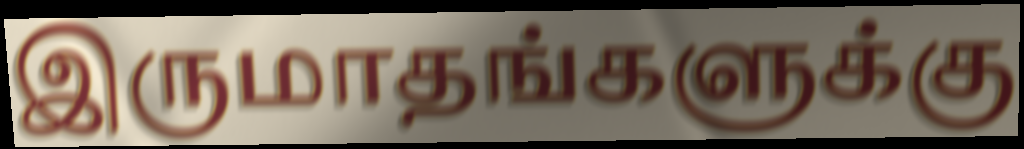
இருமாதங்களுக்கு